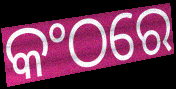
କଂଠରେ